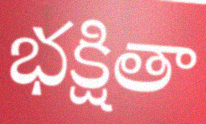
భక్షితా